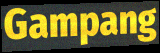
Gampang